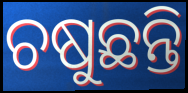
ଚଷୁଛନ୍ତି